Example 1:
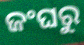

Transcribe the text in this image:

ଜଂଘରୁ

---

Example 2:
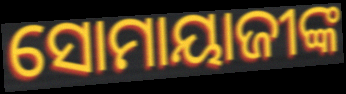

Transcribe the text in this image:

ସୋମାୟାଜୀଙ୍କ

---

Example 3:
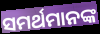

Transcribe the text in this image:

ସମର୍ଥମାନଙ୍କ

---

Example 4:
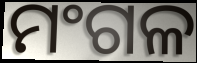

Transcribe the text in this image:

ମଂଗଳ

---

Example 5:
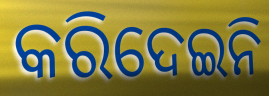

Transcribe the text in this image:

କରିଦେଇନି